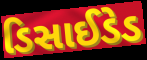
ડિસાઈડેડ